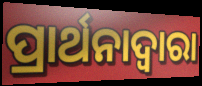
ପ୍ରାର୍ଥନାଦ୍ଵାରା